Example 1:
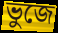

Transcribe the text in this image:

ভুজে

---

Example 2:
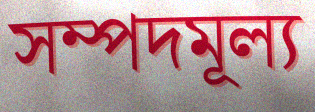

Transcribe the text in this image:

সম্পদমূল্য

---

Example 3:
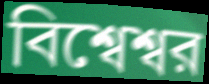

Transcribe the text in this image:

বিশ্বেশ্বর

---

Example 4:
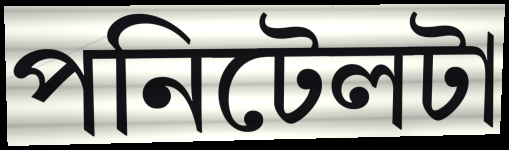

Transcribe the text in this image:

পনিটেলটা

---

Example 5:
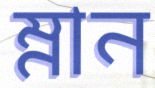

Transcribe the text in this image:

ম্নান